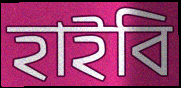
হাইবি